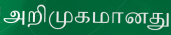
அறிமுகமானது